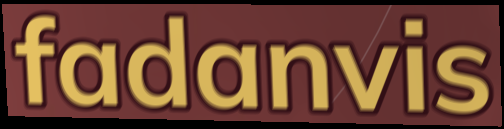
fadanvis